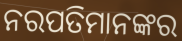
ନରପତିମାନଙ୍କର